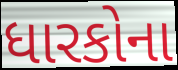
ધારકોના